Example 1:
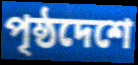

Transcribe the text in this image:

পৃষ্ঠদেশে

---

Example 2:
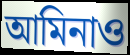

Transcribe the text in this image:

আমিনাও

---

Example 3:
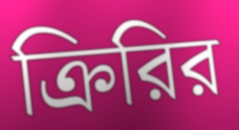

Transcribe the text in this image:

ক্রিরির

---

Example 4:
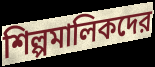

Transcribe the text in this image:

শিল্পমালিকদের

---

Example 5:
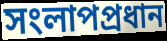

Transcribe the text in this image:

সংলাপপ্রধান